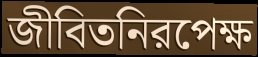
জীবিতনিরপেক্ষ